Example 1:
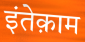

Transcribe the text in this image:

इंतेक़ाम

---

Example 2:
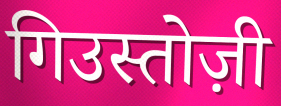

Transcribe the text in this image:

गिउस्तोज़ी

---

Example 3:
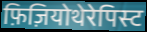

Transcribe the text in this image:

फ़िज़ियोथेरेपिस्ट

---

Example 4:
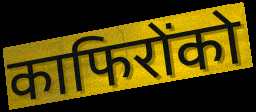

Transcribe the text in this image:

काफिरोंको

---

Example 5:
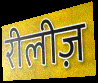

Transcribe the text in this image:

रीलीज़